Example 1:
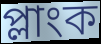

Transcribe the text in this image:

প্লাংক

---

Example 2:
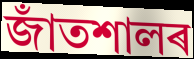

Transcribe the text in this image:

জাঁতশালৰ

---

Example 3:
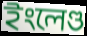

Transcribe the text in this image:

ইংলেণ্ড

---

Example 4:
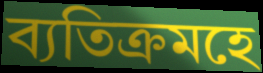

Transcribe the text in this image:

ব্যতিক্ৰমহে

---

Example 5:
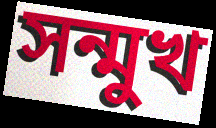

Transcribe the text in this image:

সন্মুখ